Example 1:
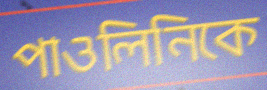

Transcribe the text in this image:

পাওলিনিকে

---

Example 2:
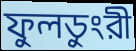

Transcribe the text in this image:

ফুলডুংরী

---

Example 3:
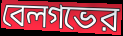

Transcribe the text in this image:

বেলগভের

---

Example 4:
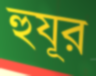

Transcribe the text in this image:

হুযূর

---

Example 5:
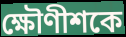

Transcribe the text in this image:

ক্ষৌণীশকে